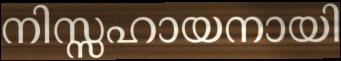
നിസ്സഹായനായി